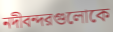
নদীবন্দরগুলোকে